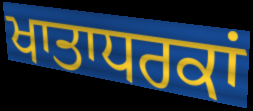
ਖਾਤਾਧਰਕਾਂ